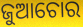
ଜୁଆଚୋର